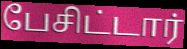
பேசிட்டார்